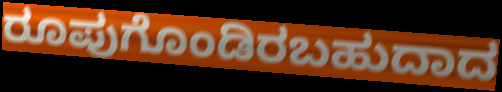
ರೂಪುಗೊಂಡಿರಬಹುದಾದ